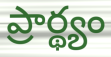
ప్రార్థ్యం